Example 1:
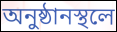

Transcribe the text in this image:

অনুষ্ঠানস্থলে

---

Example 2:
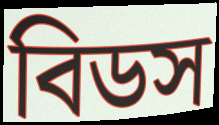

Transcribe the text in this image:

বিডস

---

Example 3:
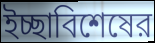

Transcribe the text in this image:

ইচ্ছাবিশেষের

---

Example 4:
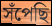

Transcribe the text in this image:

সঁপেছি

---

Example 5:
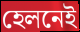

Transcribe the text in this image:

হেলনেই